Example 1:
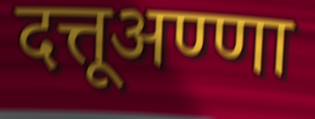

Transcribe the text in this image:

दत्तूअण्णा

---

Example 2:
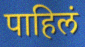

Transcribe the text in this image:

पाहिलं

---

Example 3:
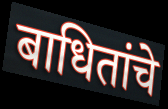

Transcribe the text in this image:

बाधितांचे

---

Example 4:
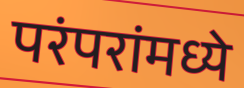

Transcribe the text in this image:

परंपरांमध्ये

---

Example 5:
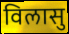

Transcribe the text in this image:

विलासु